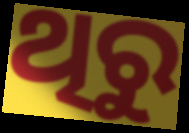
ଥିରୁ